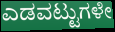
ಎಡವಟ್ಟುಗಳೇ